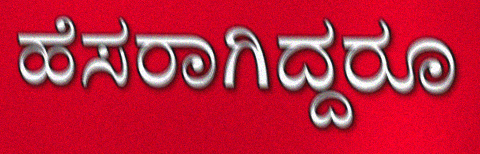
ಹೆಸರಾಗಿದ್ದರೂ